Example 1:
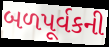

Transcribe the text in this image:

બળપૂર્વકની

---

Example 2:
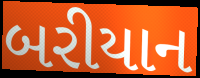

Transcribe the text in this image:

બરીયાન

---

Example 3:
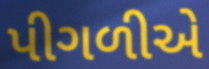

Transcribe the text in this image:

પીગળીએ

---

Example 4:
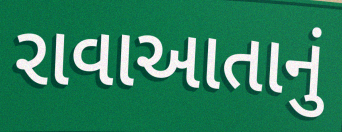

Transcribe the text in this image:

રાવાઆતાનું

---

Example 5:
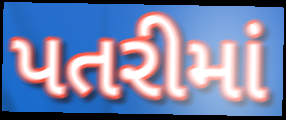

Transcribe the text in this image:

પતરીમાં